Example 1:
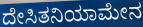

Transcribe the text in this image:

ದೇಸಿತನಿಯಾಮೇನ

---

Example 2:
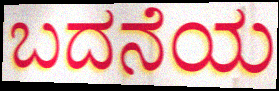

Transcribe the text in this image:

ಬದನೆಯ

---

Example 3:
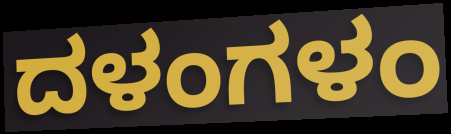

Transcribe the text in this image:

ದಳಂಗಳಂ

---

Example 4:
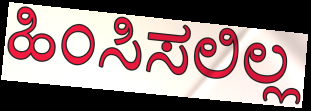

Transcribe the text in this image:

ಹಿಂಸಿಸಲಿಲ್ಲ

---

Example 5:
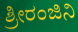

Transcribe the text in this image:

ಶ್ರೀರಂಜಿನಿ